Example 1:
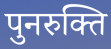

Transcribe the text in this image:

पुनरुक्ति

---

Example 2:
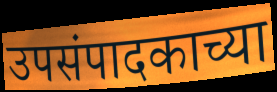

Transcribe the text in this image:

उपसंपादकाच्या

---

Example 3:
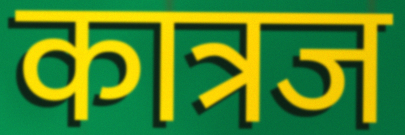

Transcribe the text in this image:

कात्रज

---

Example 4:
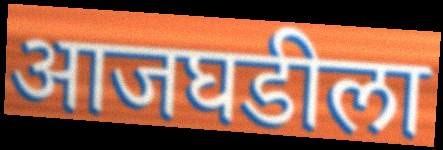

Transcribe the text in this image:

आजघडीला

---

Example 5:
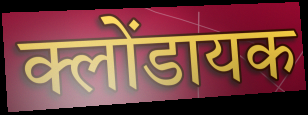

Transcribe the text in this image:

क्लोंडायक